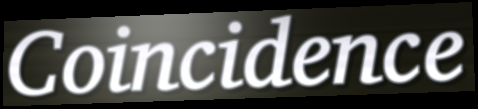
Coincidence